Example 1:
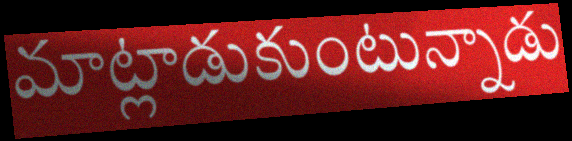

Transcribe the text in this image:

మాట్లాడుకుంటున్నాడు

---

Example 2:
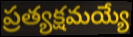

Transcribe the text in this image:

ప్రత్యక్షమయ్యే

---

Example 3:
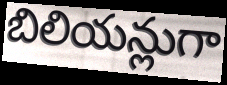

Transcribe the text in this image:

బిలియన్లుగా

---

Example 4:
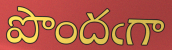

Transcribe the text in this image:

పొందఁగా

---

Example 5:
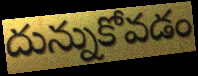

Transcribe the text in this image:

దున్నుకోవడం